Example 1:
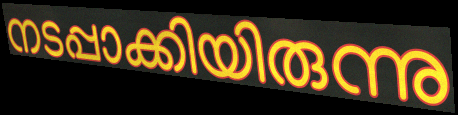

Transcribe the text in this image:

നടപ്പാക്കിയിരുന്നു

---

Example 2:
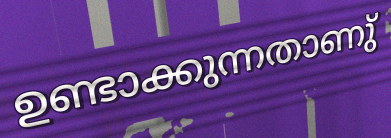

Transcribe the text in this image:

ഉണ്ടാക്കുന്നതാണു്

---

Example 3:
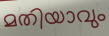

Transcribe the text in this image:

മതിയാവും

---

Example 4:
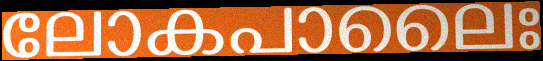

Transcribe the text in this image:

ലോകപാലൈഃ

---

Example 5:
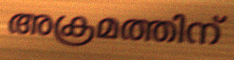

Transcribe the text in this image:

അക്രമത്തിന്